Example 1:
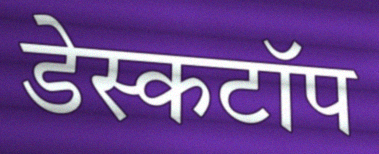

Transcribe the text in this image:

डेस्कटॉप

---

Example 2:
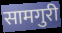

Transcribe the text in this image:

सामगुरी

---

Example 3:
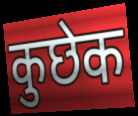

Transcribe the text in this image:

कुछेक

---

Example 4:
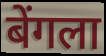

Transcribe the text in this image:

बेंगला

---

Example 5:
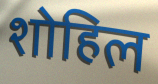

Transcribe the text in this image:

शोहिल